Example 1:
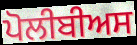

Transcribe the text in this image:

ਪੋਲੀਬੀਅਸ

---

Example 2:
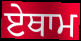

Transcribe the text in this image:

ਏਥਾਮ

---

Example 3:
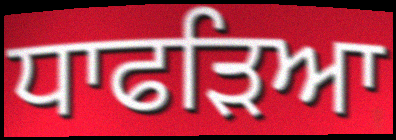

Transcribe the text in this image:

ਧਾਫੜਿਆ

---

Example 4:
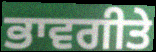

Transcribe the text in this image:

ਭਾਵਗੀਤੇ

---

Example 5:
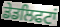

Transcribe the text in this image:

ਡੇਡਲਿਫਟਾਂ